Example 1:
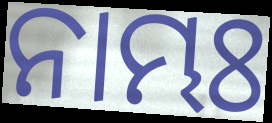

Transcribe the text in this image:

ନାମ୍ଭଃ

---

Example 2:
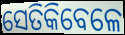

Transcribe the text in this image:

ସେତିକିବେଳେ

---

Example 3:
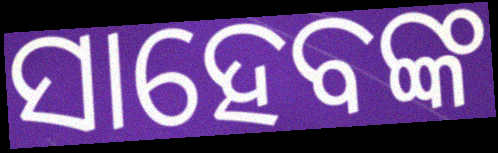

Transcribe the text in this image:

ସାହେବଙ୍କ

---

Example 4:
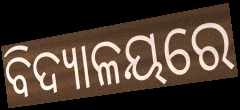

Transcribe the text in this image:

ବିଦ୍ଯାଳୟରେ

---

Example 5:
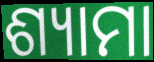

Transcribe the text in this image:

ଶ୍ୟାମା